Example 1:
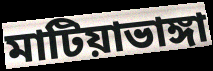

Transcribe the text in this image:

মাটিয়াভাঙ্গা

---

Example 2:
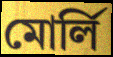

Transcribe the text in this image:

মোর্লি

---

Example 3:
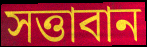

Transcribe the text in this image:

সত্তাবান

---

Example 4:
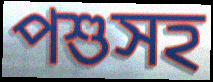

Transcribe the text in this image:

পশুসহ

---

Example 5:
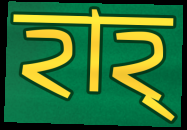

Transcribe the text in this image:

হাহ্